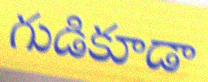
గుడికూడా